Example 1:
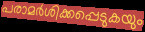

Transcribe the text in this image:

പരാമർശിക്കപ്പെടുകയും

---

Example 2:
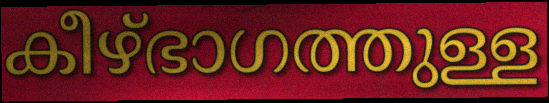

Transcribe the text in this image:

കീഴ്ഭാഗത്തുള്ള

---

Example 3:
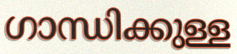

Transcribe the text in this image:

ഗാന്ധിക്കുള്ള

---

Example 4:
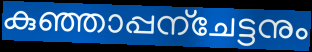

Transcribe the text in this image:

കുഞ്ഞാപ്പന്ചേട്ടനും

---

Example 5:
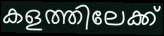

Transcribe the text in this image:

കളത്തിലേക്ക്